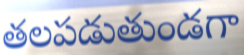
తలపడుతుండగా